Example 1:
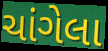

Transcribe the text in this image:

ચાંગેલા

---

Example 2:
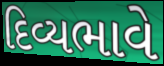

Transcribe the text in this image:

દિવ્યભાવે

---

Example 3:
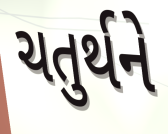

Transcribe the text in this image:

ચતુર્થને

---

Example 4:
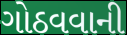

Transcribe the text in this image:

ગોઠવવાની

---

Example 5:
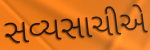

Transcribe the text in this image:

સવ્યસાચીએ